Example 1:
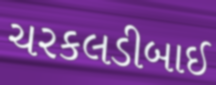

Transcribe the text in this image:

ચરકલડીબાઈ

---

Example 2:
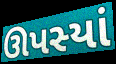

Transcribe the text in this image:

ઊપસ્યાં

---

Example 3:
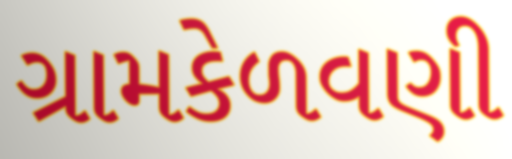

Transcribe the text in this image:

ગ્રામકેળવણી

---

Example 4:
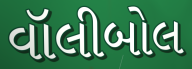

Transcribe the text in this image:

વૉલીબોલ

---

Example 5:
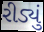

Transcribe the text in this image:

રીડ્યું